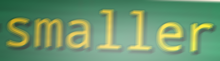
smaller